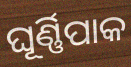
ଘୂର୍ଣ୍ଣିପାକ